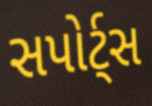
સપોર્ટ્સ